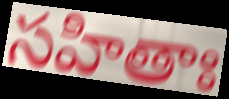
సహితాః